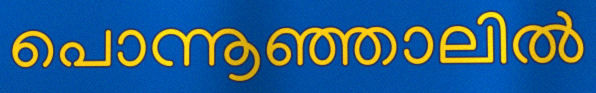
പൊന്നൂഞ്ഞാലിൽ